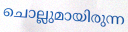
ചൊല്ലുമായിരുന്ന